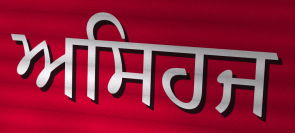
ਅਸਿਹਜ